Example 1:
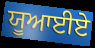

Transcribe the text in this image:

ਯੂਆਈਏ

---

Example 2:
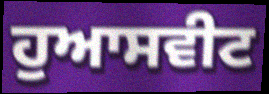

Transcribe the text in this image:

ਹੁਆਸਵੀਟ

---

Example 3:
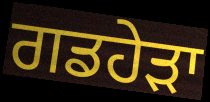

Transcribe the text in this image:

ਗਡਹੇੜਾ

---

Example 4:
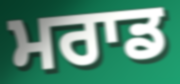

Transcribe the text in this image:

ਮਰਾਡ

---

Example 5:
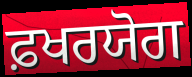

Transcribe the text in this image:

ਫ਼ਖਰਯੋਗ